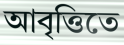
আবৃত্তিতে